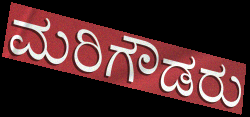
ಮರಿಗೌಡರು